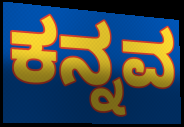
ಕನ್ನವ